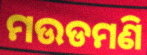
ମଉଡମଣି